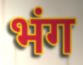
भंग